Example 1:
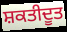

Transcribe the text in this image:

ਸ਼ਕਤੀਦੂਤ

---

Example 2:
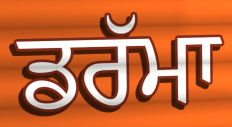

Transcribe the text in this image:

ਡਰੱਮਾ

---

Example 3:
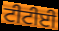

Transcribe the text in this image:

ਟੀਟੀਈ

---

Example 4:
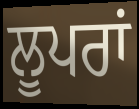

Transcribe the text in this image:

ਲੂਪਰਾਂ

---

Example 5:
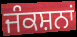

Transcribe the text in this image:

ਜੰਕਸ਼ਨਾਂ